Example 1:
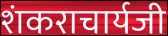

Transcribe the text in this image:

शंकराचार्यजी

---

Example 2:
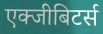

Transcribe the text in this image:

एक्जीबिटर्स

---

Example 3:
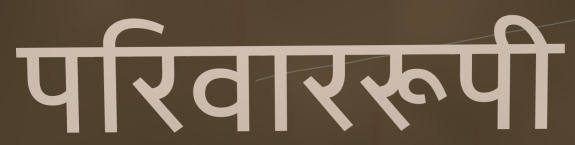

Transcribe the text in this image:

परिवाररूपी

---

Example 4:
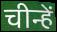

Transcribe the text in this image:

चीन्हें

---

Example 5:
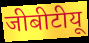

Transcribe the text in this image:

जीबीटीयू